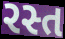
રસ્ત